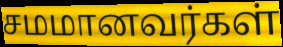
சமமானவர்கள்